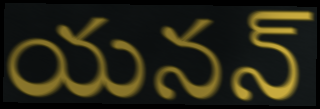
యనన్